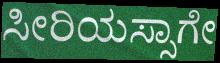
ಸೀರಿಯಸ್ಸಾಗೇ